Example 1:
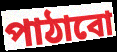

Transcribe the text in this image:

পাঠাবো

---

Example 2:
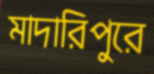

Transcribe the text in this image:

মাদারিপুরে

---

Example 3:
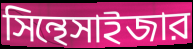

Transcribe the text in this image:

সিন্থেসাইজার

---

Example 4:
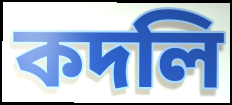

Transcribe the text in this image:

কদলি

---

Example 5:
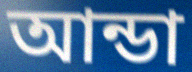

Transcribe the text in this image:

আন্ডা